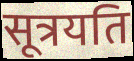
सूत्रयति